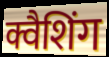
क्वैशिंग